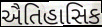
ઐતિહાસિક